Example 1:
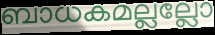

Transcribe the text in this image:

ബാധകമല്ലല്ലോ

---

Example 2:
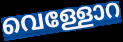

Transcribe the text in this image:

വെള്ളോറ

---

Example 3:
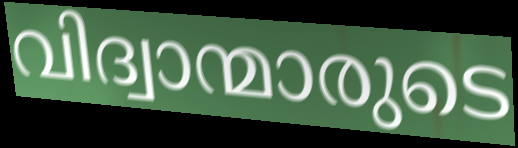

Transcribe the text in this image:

വിദ്വാന്മാരുടെ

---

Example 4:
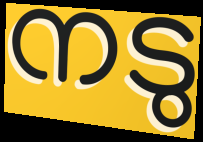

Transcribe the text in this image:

നടു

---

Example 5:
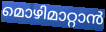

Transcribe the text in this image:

മൊഴിമാറ്റാൻ